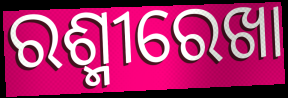
ରଶ୍ମୀରେଖା